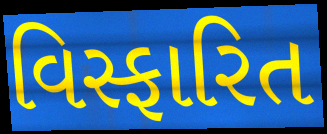
વિસ્ફારિત